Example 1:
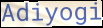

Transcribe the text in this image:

Adiyogi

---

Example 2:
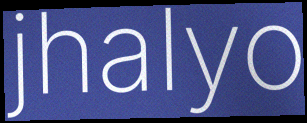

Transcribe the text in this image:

jhalyo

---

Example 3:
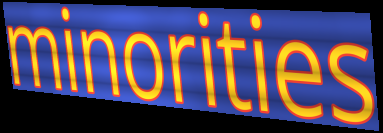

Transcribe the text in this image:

minorities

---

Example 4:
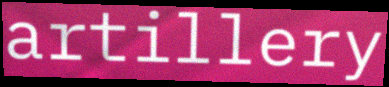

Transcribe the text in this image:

artillery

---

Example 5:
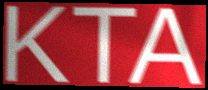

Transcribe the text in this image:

KTA